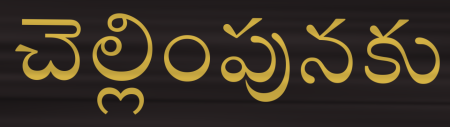
చెల్లింపునకు